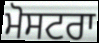
ਮੋਸਟਰਾ